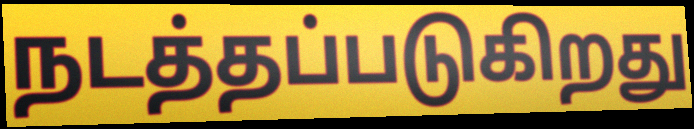
நடத்தப்படுகிறது